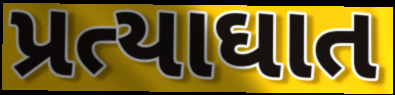
પ્રત્યાઘાત